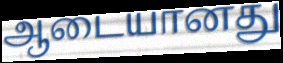
ஆடையானது